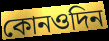
কোনওদিন